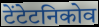
टेंटेटनिकोव